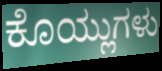
ಕೊಯ್ಲುಗಳು